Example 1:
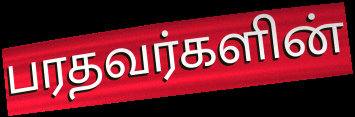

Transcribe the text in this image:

பரதவர்களின்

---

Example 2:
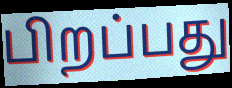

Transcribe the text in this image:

பிறப்பது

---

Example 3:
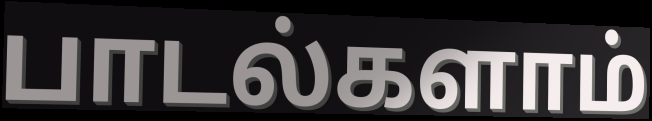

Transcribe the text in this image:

பாடல்களாம்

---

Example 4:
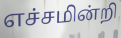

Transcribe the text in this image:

எச்சமின்றி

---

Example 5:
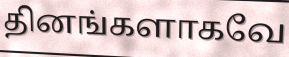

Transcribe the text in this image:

தினங்களாகவே